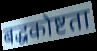
बद्धकोष्टता